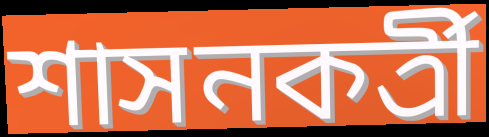
শাসনকর্ত্রী